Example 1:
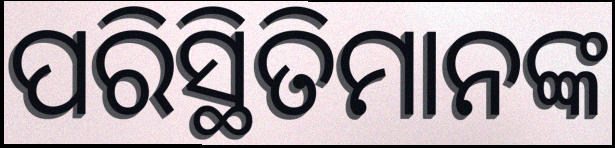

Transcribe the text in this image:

ପରିସ୍ଥିତିମାନଙ୍କ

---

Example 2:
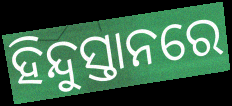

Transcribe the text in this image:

ହିନ୍ଦୁସ୍ତାନରେ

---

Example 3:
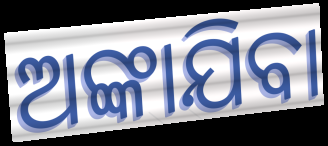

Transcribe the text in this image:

ଅଙ୍କାଯିବା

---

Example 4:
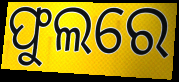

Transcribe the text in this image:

ଫୁଲରେ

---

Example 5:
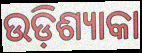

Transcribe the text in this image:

ଉଡ଼ିଶ୍ୟାକା